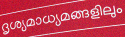
ദൃശ്യമാധ്യമങ്ങളിലും